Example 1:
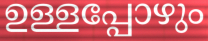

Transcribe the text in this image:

ഉള്ളപ്പോഴും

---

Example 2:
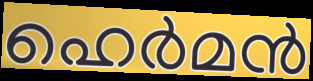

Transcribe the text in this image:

ഹെർമൻ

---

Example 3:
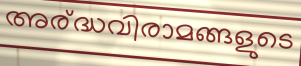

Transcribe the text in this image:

അര്ദ്ധവിരാമങ്ങളുടെ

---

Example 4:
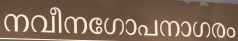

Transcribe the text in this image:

നവീനഗോപനാഗരം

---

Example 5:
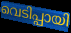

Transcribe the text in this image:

വെടിപ്പായി